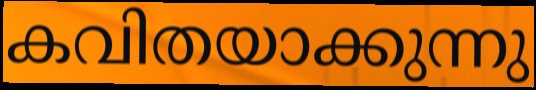
കവിതയാക്കുന്നു